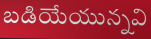
బడియేయున్నవి